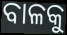
ବାଳକୁ